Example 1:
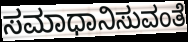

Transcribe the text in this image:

ಸಮಾಧಾನಿಸುವಂತೆ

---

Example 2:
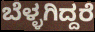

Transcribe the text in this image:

ಬೆಳ್ಳಗಿದ್ದರೆ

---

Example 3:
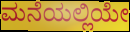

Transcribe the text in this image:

ಮನೆಯಲ್ಲಿಯೇ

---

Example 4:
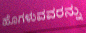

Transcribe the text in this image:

ಹೊಗಳುವವರನ್ನು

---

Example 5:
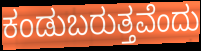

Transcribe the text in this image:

ಕಂಡುಬರುತ್ತವೆಂದು